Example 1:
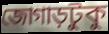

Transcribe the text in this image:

জোগাড়টুকু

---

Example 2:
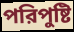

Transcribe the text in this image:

পরিপুষ্টি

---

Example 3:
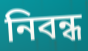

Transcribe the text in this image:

নিবন্ধ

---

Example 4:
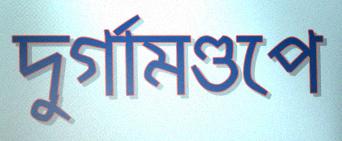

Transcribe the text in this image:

দুর্গামণ্ডপে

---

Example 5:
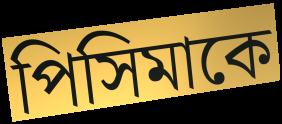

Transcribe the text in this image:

পিসিমাকে